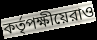
কর্তৃপক্ষীয়েরাও